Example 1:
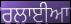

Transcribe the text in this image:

ਰਲਾਈਆ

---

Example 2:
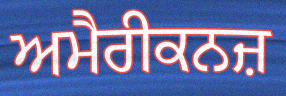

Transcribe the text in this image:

ਅਮੈਰੀਕਨਜ਼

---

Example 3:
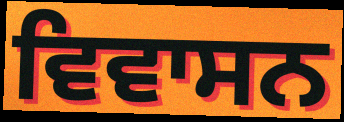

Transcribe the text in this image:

ਵਿਵਾਸਨ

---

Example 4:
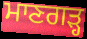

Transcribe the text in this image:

ਮਾਣਗੜ੍ਹ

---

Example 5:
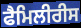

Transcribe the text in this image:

ਫੈਮਿਲੀਰੀਸ